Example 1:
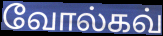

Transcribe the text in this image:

வோல்கவ்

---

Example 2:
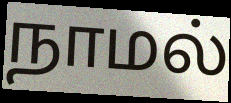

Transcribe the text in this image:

நாமல்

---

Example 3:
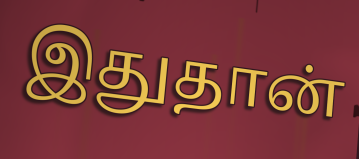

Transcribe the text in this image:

இதுதான்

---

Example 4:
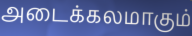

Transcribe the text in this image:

அடைக்கலமாகும்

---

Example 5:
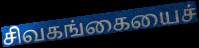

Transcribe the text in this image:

சிவகங்கையைச்